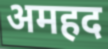
अमहद